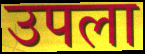
उपला